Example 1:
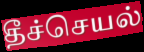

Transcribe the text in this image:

தீச்செயல்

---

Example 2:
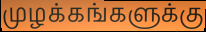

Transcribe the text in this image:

முழக்கங்களுக்கு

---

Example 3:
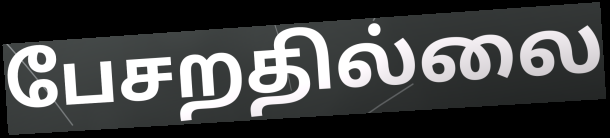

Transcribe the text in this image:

பேசறதில்லை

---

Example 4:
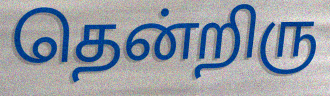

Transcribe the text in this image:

தென்றிரு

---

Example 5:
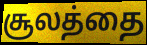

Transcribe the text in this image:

சூலத்தை